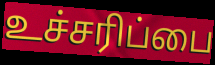
உச்சரிப்பை